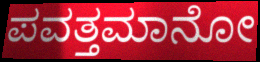
ಪವತ್ತಮಾನೋ